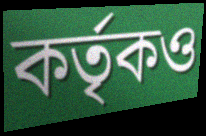
কর্তৃকও